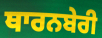
ਥਾਰਨਬੇਰੀ